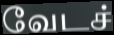
வேடச்